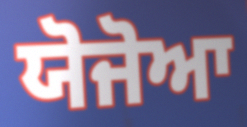
ਯੋਜੋਆ